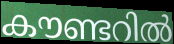
കൗണ്ടറിൽ